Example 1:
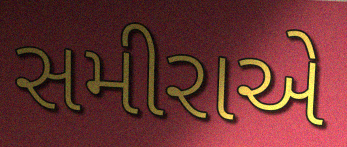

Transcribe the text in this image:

સમીરાએ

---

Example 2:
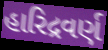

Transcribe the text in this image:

હારિદ્રવર્ણ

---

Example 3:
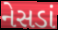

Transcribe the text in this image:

નેસડાં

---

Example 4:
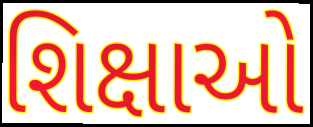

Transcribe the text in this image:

શિક્ષાઓ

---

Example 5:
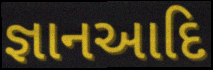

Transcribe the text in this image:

જ્ઞાનઆદિ